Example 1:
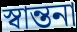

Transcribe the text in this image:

স্বান্তনা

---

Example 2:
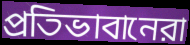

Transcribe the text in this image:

প্রতিভাবানেরা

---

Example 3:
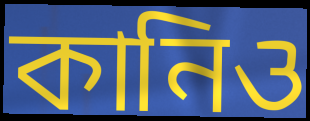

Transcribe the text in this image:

কানিও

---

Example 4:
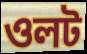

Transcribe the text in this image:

ওলট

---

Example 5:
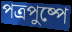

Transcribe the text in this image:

পত্রপুষ্পে